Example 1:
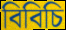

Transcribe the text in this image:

বিবিচি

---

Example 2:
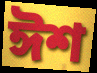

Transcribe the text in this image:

ঈশ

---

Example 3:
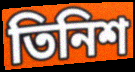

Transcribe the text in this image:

তিনিশ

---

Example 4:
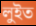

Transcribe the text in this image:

লুইত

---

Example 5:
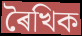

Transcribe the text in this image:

ৰৈখিক